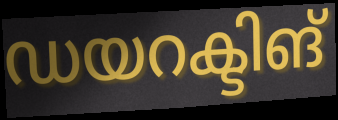
ഡയറക്ടിങ്